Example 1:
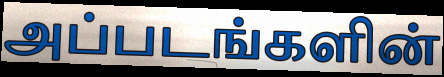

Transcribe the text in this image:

அப்படங்களின்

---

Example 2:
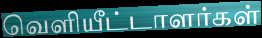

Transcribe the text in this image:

வெளியீட்டாளர்கள்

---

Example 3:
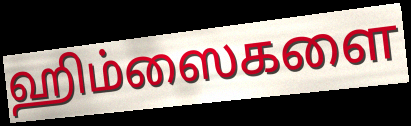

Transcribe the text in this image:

ஹிம்ஸைகளை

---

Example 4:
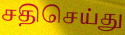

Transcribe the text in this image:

சதிசெய்து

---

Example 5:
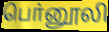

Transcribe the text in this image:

பெர்னூலி